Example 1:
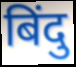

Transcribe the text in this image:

बिंदु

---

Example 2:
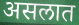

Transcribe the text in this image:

असलात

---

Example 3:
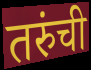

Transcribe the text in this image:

तरुंची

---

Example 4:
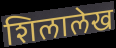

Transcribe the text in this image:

शिलालेख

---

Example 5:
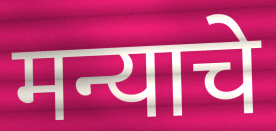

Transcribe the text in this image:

मन्याचे